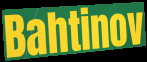
Bahtinov